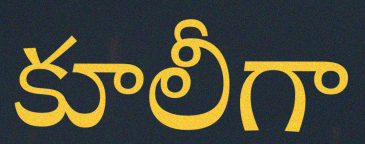
కూలీగా